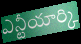
ఎన్టీయార్కి